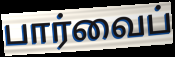
பார்வைப்